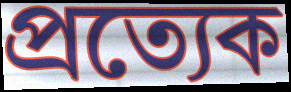
প্ৰত্য়েক